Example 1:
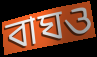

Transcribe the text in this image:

বাঘও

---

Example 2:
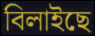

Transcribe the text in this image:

বিলাইছে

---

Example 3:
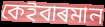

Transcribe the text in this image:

কেইবাৰমান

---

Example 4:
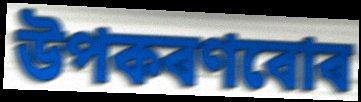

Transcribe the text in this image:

উপকৰণবোৰ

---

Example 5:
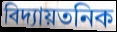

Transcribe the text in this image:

বিদ্য়ায়তনিক